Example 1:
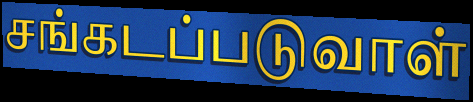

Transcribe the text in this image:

சங்கடப்படுவாள்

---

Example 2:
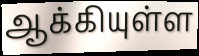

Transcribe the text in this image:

ஆக்கியுள்ள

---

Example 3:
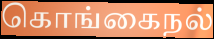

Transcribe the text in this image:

கொங்கைநல்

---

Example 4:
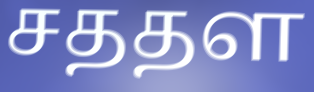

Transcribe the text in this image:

சததள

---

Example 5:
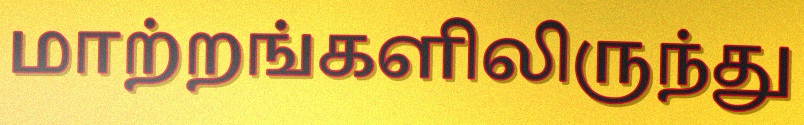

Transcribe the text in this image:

மாற்றங்களிலிருந்து